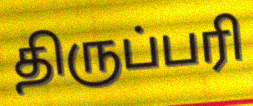
திருப்பரி